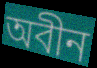
অবীন